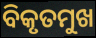
ବିକୃତମୁଖ